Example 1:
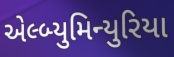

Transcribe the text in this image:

એલ્બ્યુમિન્યુરિયા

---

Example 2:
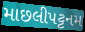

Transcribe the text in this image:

માછલીપટ્ટનમ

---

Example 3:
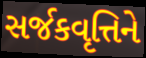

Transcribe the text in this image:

સર્જકવૃત્તિને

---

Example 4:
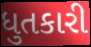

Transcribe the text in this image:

ધુતકારી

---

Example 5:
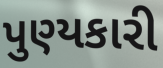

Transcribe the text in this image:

પુણ્યકારી